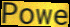
Powe